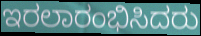
ಇರಲಾರಂಭಿಸಿದರು